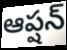
ఆప్షన్